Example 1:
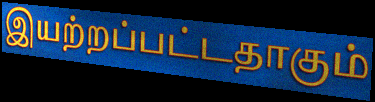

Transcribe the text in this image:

இயற்றப்பட்டதாகும்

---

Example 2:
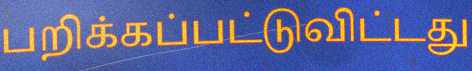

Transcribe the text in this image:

பறிக்கப்பட்டுவிட்டது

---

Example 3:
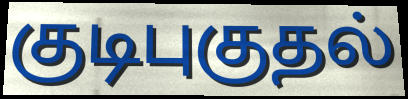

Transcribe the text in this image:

குடிபுகுதல்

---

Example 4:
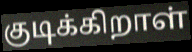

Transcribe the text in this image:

குடிக்கிறாள்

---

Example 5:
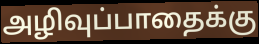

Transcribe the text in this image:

அழிவுப்பாதைக்கு